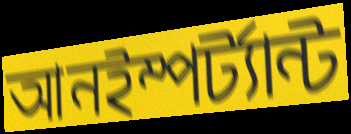
আনইম্পর্ট্যান্ট